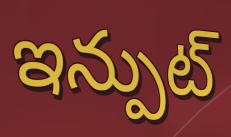
ఇన్పుట్